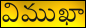
విముఖా